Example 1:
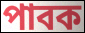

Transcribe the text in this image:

পাবক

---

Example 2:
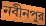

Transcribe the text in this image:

নবীনপুর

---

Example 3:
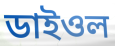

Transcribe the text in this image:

ডাইওল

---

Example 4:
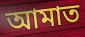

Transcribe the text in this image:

আমাত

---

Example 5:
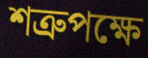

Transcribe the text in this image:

শত্রুপক্ষে